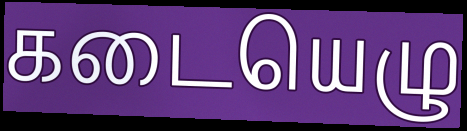
கடையெழு